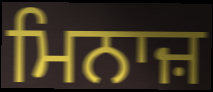
ਮਿਨਾਜ਼